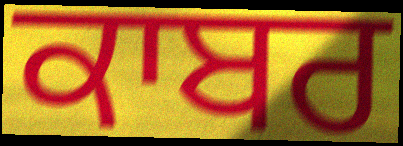
ਕਾਬਰ